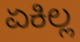
ಏಕಿಲ್ಲ